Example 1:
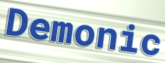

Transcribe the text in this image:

Demonic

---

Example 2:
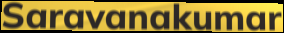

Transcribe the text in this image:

Saravanakumar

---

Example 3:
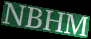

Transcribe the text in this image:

NBHM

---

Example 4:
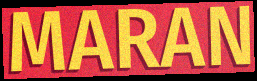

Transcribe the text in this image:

MARAN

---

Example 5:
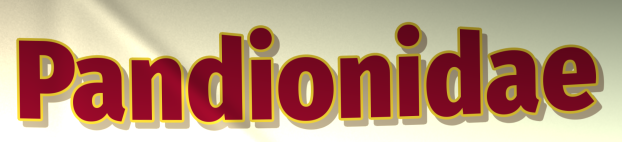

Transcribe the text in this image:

Pandionidae